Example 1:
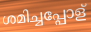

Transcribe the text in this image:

ശമിച്ചപ്പോള്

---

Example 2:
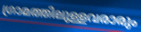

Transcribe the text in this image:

ഗ്രാമത്തിലുള്ളവരാരും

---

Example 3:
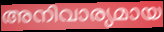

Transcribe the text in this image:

അനിവാര്യമായ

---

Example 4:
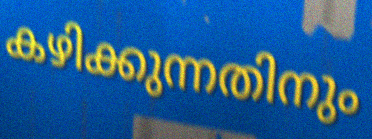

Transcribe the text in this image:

കഴിക്കുന്നതിനും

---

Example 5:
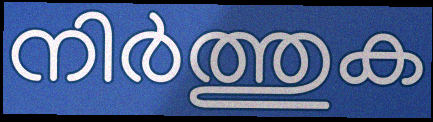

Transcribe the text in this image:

നിർത്തുക